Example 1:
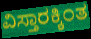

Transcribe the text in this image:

ವಿಸ್ತಾರಕ್ಕಿಂತ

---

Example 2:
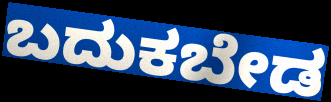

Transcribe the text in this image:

ಬದುಕಬೇಡ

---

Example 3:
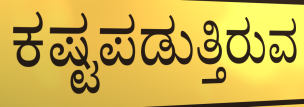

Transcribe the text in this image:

ಕಷ್ಟಪಡುತ್ತಿರುವ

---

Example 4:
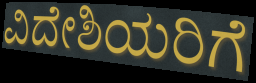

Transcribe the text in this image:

ವಿದೇಶಿಯರಿಗೆ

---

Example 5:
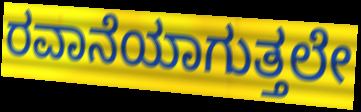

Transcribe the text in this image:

ರವಾನೆಯಾಗುತ್ತಲೇ